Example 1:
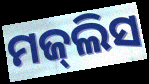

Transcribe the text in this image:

ମଜ୍‌ଲିସ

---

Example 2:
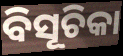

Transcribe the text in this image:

ବିସୂଚିକା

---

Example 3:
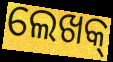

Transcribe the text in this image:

ଲେଖକ୍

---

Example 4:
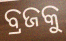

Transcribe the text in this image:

ବ୍ରଜକୁ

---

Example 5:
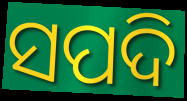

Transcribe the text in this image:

ସପଦି